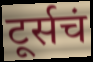
टूर्सचं